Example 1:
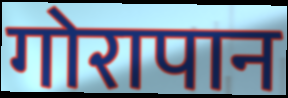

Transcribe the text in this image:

गोरापान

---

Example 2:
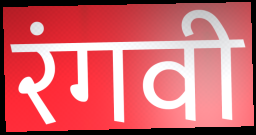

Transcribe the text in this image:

रंगवी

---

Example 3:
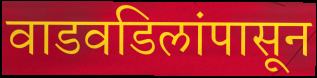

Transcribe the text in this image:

वाडवडिलांपासून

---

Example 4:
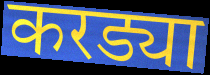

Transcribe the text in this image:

करड्या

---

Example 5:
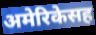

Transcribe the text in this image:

अमेरिकेसह